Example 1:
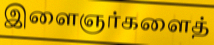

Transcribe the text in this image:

இளைஞர்களைத்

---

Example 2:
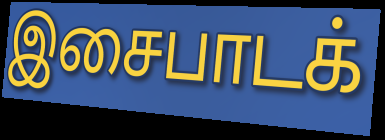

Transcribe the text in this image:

இசைபாடக்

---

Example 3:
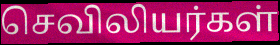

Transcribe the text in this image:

செவிலியர்கள்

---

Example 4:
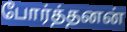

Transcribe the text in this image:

போர்த்தனன்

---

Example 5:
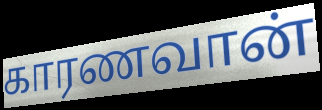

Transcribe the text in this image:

காரணவான்